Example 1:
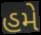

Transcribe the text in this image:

હમે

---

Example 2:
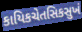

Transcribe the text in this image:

કાયિકચેતસિકસુખં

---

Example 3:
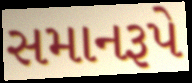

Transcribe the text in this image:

સમાનરૂપે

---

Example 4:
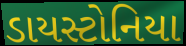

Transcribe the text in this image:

ડાયસ્ટોનિયા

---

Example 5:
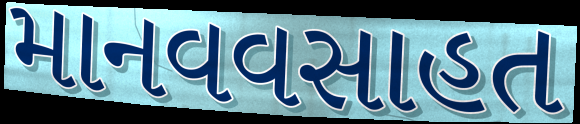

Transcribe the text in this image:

માનવવસાહત